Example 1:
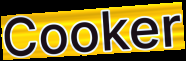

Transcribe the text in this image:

Cooker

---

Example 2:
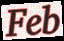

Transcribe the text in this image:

Feb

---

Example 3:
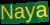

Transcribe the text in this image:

Naya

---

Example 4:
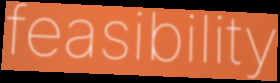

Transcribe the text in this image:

feasibility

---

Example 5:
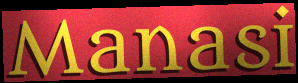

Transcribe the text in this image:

Manasi